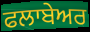
ਫਲਾਬੇਅਰ